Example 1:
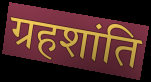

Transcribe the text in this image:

ग्रहशांति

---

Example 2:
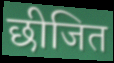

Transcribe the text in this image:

छीजित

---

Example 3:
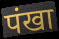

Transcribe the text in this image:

पंखा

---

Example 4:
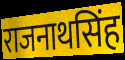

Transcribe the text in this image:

राजनाथसिंह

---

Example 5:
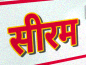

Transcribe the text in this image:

सीरम